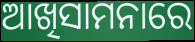
ଆଖିସାମନାରେ